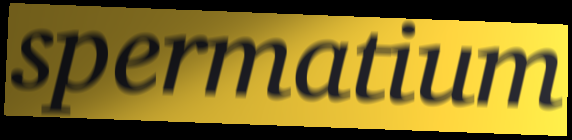
spermatium